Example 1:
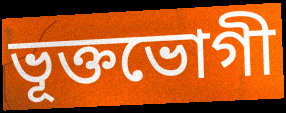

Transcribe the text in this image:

ভূক্তভোগী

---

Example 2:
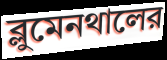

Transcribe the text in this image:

ব্লুমেনথালের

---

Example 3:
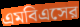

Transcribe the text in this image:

এমবিএসের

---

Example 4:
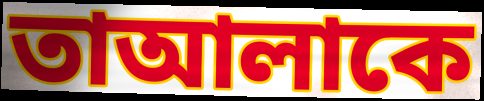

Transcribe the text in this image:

তাআলাকে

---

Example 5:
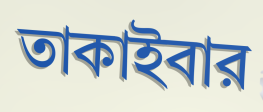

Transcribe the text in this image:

তাকাইবার